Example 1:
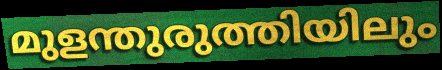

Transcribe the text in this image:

മുളന്തുരുത്തിയിലും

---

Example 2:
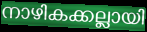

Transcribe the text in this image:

നാഴികക്കല്ലായി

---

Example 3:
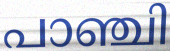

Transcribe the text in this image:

പാഞ്ചി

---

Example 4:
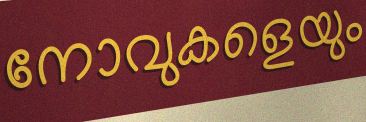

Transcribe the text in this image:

നോവുകളെയും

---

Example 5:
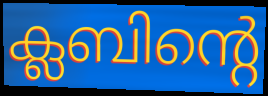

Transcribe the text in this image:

ക്ലബിന്റെ